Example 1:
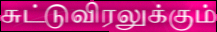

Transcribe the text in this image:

சுட்டுவிரலுக்கும்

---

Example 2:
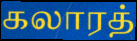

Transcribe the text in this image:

கலாரத்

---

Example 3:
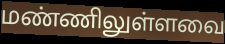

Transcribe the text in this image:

மண்ணிலுள்ளவை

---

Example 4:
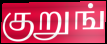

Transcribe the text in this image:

குறுங்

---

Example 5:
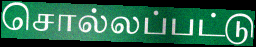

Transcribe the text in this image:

சொல்லப்பட்டு